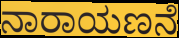
ನಾರಾಯಣನೆ